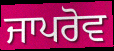
ਜਾਪਰੋਵ